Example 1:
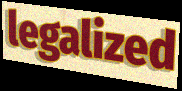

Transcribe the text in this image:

legalized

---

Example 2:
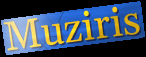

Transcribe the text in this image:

Muziris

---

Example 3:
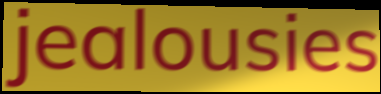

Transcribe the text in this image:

jealousies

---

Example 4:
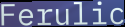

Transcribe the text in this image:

Ferulic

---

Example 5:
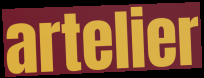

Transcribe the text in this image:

artelier